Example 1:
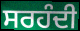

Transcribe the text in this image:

ਸਰਹੰਦੀ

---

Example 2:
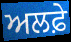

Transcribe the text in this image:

ਅਲਫ਼ੇ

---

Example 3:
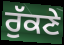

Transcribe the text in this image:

ਰੁੱਕਣੇ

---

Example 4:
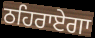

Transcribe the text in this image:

ਠਹਿਰਾਏਗਾ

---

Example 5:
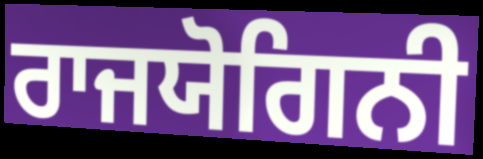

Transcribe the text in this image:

ਰਾਜਯੋਗਿਨੀ